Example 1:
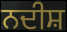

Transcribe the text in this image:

ਨਦੀਸ਼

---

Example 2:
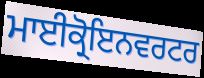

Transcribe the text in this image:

ਮਾਈਕ੍ਰੋਇਨਵਰਟਰ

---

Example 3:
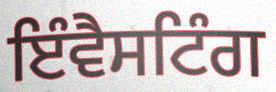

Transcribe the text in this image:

ਇੰਵੈਸਟਿੰਗ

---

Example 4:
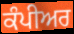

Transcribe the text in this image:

ਕੰਪੀਅਰ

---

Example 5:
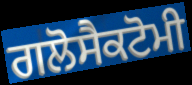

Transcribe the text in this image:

ਗਲੋਸੈਕਟੋਮੀ